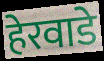
हेरवाडे